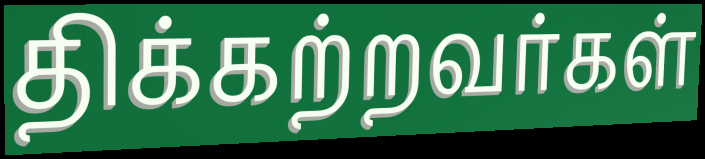
திக்கற்றவர்கள்